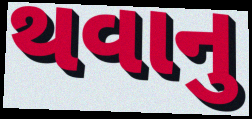
થવાનુ